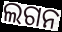
ଲଗନ